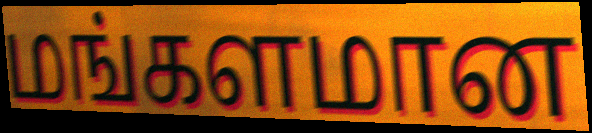
மங்களமான